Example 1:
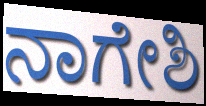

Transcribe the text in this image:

ನಾಗೇಶಿ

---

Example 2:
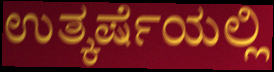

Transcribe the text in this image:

ಉತ್ಕರ್ಷೆಯಲ್ಲಿ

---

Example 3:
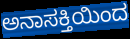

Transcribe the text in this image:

ಅನಾಸಕ್ತಿಯಿಂದ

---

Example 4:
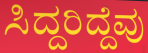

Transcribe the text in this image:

ಸಿದ್ದರಿದ್ದೆವು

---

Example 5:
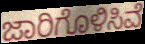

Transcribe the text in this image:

ಜಾರಿಗೊಳಿಸಿವೆ